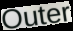
Outer